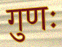
गुणः